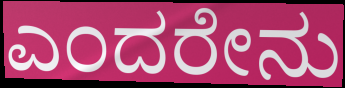
ಎಂದರೇನು